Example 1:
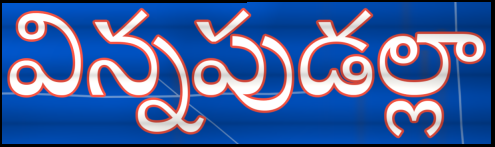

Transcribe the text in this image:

విన్నపుడల్లా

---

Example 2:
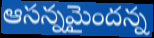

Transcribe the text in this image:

ఆసన్నమైందన్న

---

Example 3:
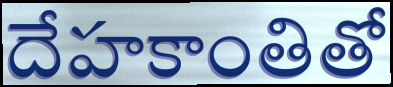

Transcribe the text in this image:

దేహకాంతితో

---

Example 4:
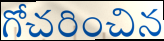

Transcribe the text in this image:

గోచరించిన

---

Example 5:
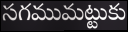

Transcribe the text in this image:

సగముమట్టుకు